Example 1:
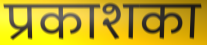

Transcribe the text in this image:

प्रकाशका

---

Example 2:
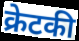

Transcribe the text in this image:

क्रेटकी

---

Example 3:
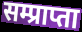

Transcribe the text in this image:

सम्प्राप्ता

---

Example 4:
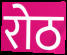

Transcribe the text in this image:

रोठ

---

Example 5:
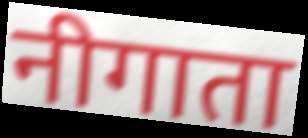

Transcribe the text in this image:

नीगाता